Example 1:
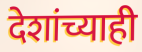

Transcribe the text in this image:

देशांच्याही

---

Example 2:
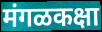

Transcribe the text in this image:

मंगळकक्षा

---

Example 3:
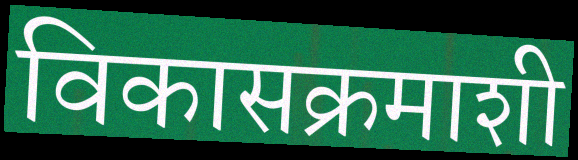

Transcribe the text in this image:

विकासक्रमाशी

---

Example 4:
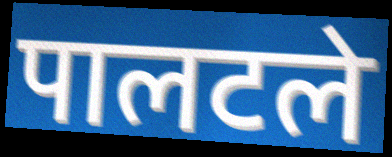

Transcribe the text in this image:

पालटले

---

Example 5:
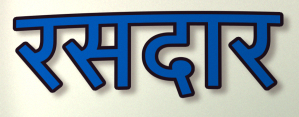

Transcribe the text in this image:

रसदार